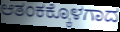
ಆತಂಕಕ್ಕೊಳಗಾದ